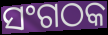
ସଂଗଠକ